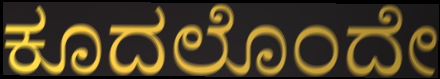
ಕೂದಲೊಂದೇ